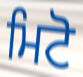
ਮਿਟੋ